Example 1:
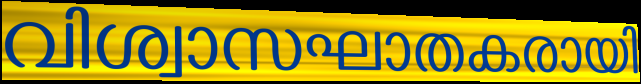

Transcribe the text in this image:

വിശ്വാസഘാതകരായി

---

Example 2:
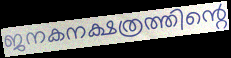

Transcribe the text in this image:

ജനകനക്ഷത്രത്തിന്റെ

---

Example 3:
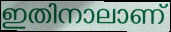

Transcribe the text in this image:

ഇതിനാലാണ്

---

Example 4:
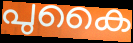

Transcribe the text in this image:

പുകൈ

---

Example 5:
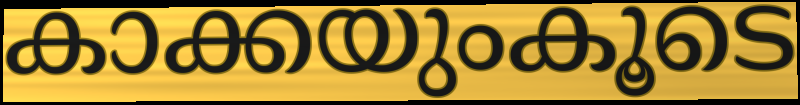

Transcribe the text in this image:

കാക്കയുംകൂടെ